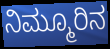
ನಿಮ್ಮೂರಿನ